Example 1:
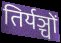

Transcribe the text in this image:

तिर्यञ्चों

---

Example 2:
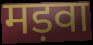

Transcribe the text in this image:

मड़वा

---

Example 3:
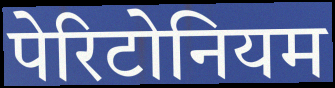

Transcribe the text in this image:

पेरिटोनियम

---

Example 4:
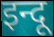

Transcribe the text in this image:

इन्दू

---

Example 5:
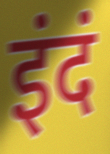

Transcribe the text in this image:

इंदं